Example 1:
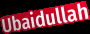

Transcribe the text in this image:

Ubaidullah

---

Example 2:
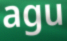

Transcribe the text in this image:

agu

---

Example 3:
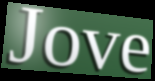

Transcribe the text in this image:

Jove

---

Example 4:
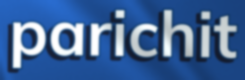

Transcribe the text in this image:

parichit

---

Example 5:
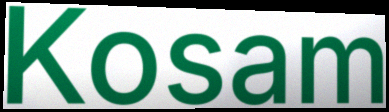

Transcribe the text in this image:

Kosam